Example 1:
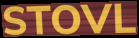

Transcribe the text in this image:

STOVL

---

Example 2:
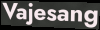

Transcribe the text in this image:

Vajesang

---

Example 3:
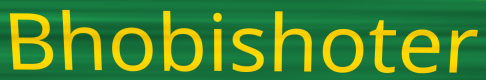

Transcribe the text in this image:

Bhobishoter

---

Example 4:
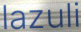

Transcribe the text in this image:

lazuli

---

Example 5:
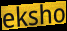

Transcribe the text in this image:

eksho